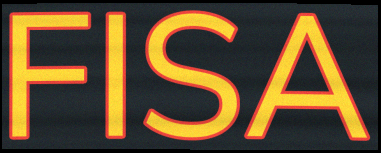
FISA